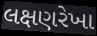
લક્ષણરેખા